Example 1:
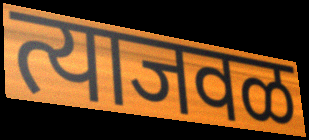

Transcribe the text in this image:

त्याजवळ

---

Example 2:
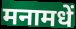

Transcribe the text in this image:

मनामधें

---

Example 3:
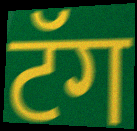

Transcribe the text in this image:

टॅग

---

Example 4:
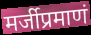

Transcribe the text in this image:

मर्जीप्रमाणं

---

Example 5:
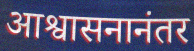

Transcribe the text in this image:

आश्वासनानंतर